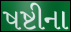
ષષ્ટીના